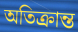
অতিক্ৰান্ত